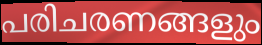
പരിചരണങ്ങളും